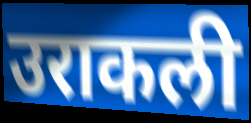
उराकली